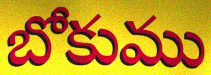
బోకుము